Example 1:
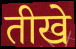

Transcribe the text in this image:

तीखे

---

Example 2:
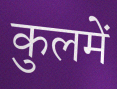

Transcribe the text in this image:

कुलमें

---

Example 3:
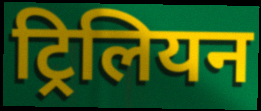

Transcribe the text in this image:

ट्रिलियन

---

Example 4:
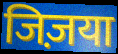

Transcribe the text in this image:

जिज़या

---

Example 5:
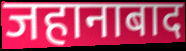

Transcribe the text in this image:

जहानाबाद